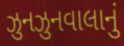
ઝુનઝુનવાલાનું